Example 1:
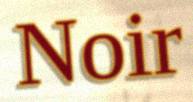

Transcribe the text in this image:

Noir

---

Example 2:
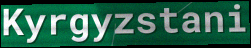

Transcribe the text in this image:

Kyrgyzstani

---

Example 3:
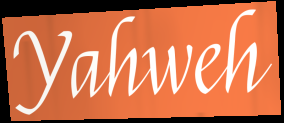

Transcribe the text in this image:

Yahweh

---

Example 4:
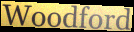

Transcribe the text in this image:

Woodford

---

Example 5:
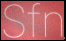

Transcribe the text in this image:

Sfn